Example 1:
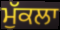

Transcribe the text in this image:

ਮੁੱਕਲਾ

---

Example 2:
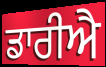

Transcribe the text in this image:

ਡਾਰੀਐ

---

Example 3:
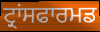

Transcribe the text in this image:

ਟ੍ਰਾਂਸਫਾਰਮਡ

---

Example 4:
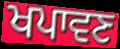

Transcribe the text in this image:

ਖਪਾਵਣ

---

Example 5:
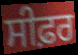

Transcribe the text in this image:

ਸੀਫ਼ਰ